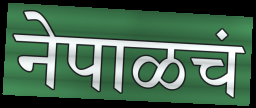
नेपाळचं